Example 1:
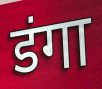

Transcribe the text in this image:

डंगा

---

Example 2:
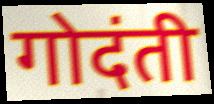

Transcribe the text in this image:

गोदंती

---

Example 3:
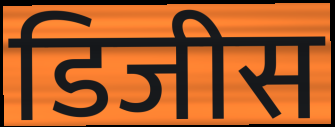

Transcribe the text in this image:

डिजीस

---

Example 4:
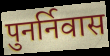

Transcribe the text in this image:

पुनर्निवास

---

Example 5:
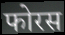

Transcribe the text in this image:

फोरस